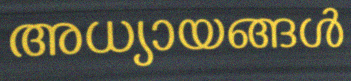
അധ്യായങ്ങൾ